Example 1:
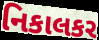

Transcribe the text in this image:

નિકાલકર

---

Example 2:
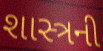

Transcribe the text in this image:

શાસ્ત્રની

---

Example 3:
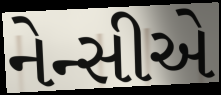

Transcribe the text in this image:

નેન્સીએ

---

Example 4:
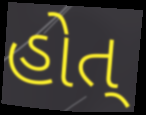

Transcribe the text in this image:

હોત્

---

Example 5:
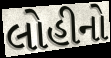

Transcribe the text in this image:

લોહીનો